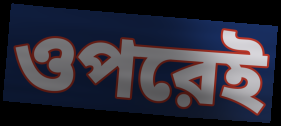
ওপরেই